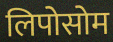
लिपोसोम